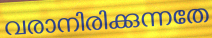
വരാനിരിക്കുന്നതേ